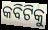
କବିଟିକୁ